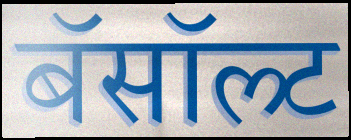
बॅसॉल्ट